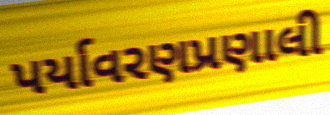
પર્યાવરણપ્રણાલી